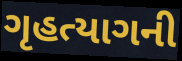
ગૃહત્યાગની